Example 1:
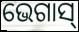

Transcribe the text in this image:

ଭେଗାସ୍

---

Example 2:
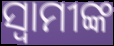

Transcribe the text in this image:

ସ୍ୱାମୀଙ୍କ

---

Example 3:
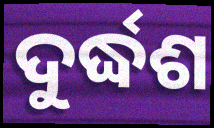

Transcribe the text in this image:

ଦୁର୍ଦ୍ଧଶ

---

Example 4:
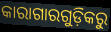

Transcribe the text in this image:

କାରାଗାରଗୁଡ଼ିକରୁ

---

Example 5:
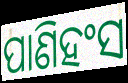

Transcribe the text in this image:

ପାଣିହଂସ